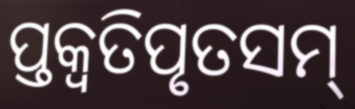
ପ୍ତକ୍ଵତିପୃତସମ୍